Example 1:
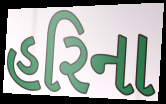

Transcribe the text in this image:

હરિના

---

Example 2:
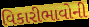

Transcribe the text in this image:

વિકારીભાવોની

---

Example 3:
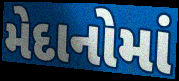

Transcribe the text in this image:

મેદાનોમાં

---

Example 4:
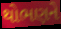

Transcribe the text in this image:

થોભણને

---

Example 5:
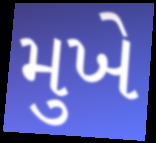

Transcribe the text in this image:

મુખે